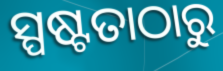
ସ୍ପଷ୍ଟତାଠାରୁ